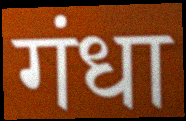
गंधा